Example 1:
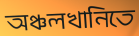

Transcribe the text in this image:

অঞ্চলখানিতে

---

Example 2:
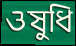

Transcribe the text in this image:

ওষুধি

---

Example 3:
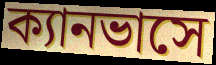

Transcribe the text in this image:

ক্যানভাসে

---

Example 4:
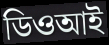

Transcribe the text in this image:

ডিওআই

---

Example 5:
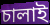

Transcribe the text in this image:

চালাই